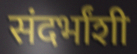
संदर्भांशी